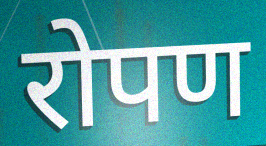
रोपण